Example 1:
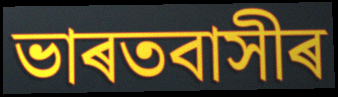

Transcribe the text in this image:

ভাৰতবাসীৰ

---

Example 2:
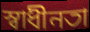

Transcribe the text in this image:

স্বাধীনতা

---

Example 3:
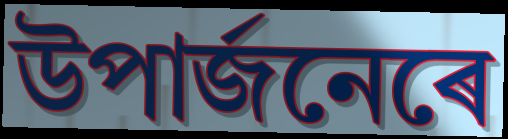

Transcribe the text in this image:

উপাৰ্জনেৰে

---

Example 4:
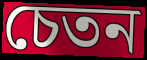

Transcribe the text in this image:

চেতন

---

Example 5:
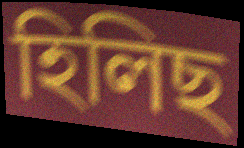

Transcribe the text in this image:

হিলিছ